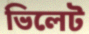
ভিলেট